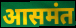
आसमंत